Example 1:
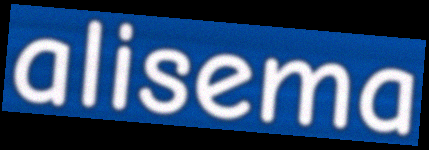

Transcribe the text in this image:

alisema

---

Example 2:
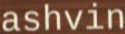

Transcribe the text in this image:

ashvin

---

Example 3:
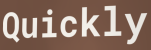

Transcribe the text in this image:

Quickly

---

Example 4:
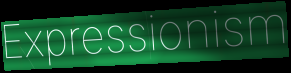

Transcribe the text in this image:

Expressionism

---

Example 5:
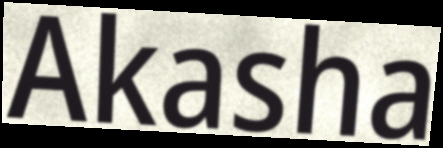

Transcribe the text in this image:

Akasha